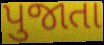
પુજાતા